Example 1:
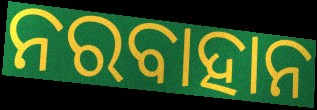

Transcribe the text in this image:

ନରବାହାନ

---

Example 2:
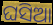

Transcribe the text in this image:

ଘସିଆ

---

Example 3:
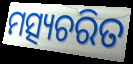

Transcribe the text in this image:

ମତ୍ସ୍ୟଚରିତ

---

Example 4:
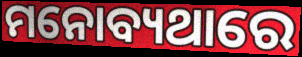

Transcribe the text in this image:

ମନୋବ୍ୟଥାରେ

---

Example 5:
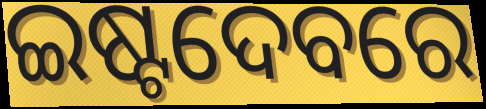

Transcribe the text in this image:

ଇଷ୍ଟଦେବରେ